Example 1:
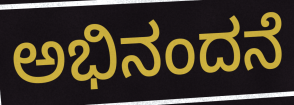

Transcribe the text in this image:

ಅಭಿನಂದನೆ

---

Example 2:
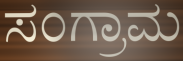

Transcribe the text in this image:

ಸಂಗ್ರಾಮ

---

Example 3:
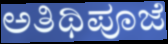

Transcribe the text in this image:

ಅತಿಥಿಪೂಜೆ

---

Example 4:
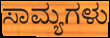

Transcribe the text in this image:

ಸಾಮ್ಯಗಳು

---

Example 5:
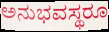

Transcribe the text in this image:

ಅನುಭವಸ್ಥರೂ